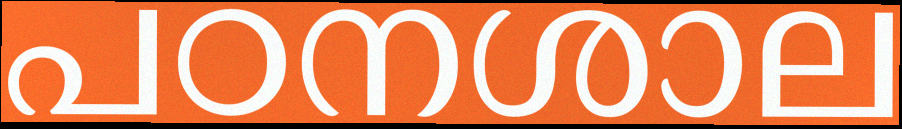
പഠനശാല